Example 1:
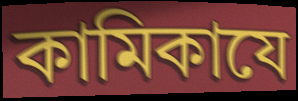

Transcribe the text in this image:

কামিকাযে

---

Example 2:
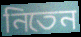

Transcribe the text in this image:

নিতেন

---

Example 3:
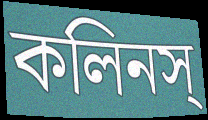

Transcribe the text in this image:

কলিনস্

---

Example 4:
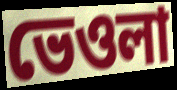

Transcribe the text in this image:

ভেওলা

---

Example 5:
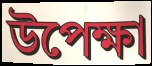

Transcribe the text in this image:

উপেক্ষা